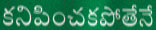
కనిపించకపోతేనే